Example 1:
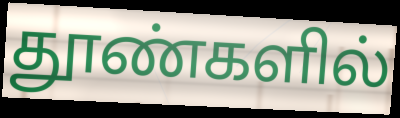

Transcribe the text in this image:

தூண்களில்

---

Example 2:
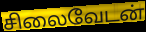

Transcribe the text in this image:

சிலைவேடன்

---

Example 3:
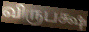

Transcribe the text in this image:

விருபக்ஷ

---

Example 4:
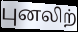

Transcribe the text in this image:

புனலிற்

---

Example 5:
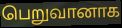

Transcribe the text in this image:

பெறுவானாக